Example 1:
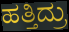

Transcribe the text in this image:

ಹತ್ತಿದ್ರು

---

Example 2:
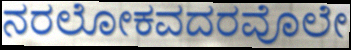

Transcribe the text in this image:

ನರಲೋಕವದರವೊಲೇ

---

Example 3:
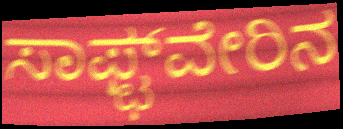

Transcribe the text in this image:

ಸಾಫ್ಟ್‌ವೇರಿನ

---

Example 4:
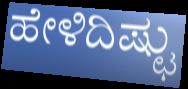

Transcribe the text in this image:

ಹೇಳಿದಿಷ್ಟು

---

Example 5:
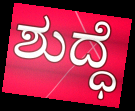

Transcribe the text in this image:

ಶುದ್ಧೆ